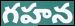
గహన